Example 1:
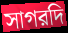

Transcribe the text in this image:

সাগরদি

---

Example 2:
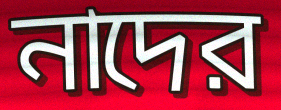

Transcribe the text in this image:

নাদের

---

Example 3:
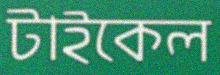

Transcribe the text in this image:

টাইকেল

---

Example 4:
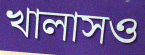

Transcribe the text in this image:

খালাসও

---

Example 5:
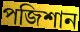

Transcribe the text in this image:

পজিশান